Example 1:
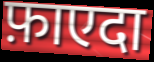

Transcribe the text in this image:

फ़ाएदा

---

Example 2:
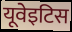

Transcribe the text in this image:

यूवेइटिस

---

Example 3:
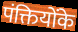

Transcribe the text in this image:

पंक्तियोंके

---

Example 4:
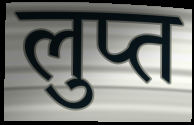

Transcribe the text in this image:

लुप्त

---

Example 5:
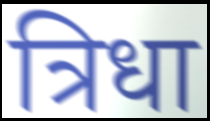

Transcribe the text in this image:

त्रिधा